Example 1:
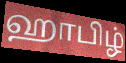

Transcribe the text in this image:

ஹாபிழ்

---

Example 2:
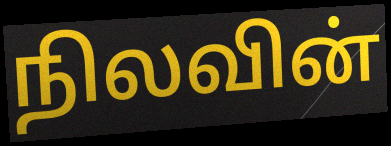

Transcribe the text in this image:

நிலவின்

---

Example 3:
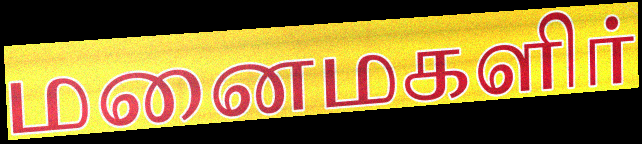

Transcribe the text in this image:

மனைமகளிர்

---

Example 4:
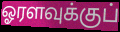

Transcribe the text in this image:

ஓரளவுக்குப்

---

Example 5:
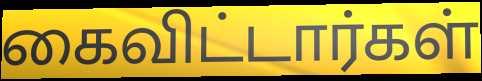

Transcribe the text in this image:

கைவிட்டார்கள்